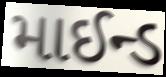
માઈન્ડ